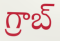
గ్రాబ్